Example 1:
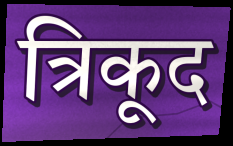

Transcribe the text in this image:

त्रिकूद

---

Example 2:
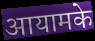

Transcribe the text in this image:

आयामके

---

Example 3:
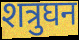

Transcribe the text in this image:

शत्रुघन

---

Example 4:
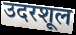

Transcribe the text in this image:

उदरशूल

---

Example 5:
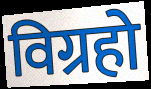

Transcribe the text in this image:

विग्रहो